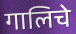
गालिचे